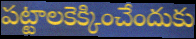
పట్టాలకెక్కించేందుకు